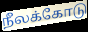
நீலக்கோடு